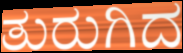
ತುರುಗಿದ